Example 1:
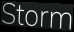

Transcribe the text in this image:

Storm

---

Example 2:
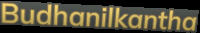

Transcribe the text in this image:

Budhanilkantha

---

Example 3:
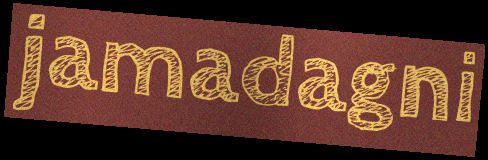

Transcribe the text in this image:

jamadagni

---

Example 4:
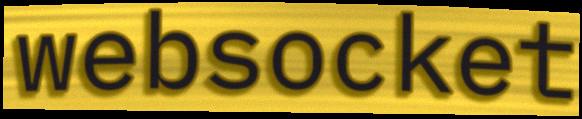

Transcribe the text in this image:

websocket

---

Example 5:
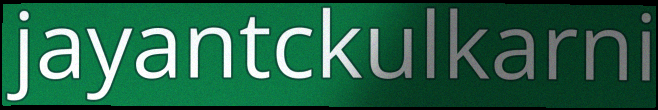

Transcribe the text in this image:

jayantckulkarni